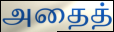
அதைத்